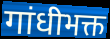
गांधीभक्त